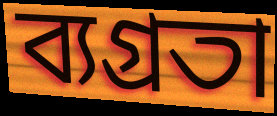
ব্যগ্রতা